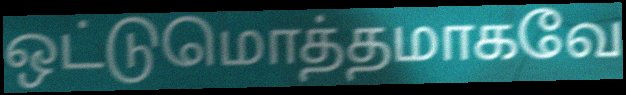
ஒட்டுமொத்தமாகவே